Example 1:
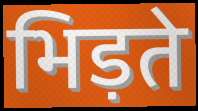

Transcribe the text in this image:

भिड़ते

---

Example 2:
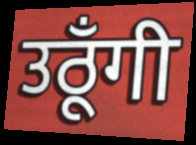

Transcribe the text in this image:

उठूँगी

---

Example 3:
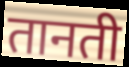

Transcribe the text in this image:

तानती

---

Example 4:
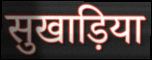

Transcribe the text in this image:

सुखाड़िया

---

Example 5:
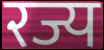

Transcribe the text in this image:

रज्य